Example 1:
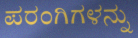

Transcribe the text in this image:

ಪರಂಗಿಗಳನ್ನು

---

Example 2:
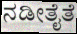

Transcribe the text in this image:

ನಡೀತೈತೆ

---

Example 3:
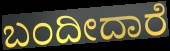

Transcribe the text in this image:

ಬಂದೀದಾರೆ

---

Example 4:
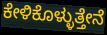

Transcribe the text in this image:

ಕೇಳಿಕೊಳ್ಳುತ್ತೇನೆ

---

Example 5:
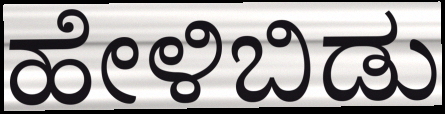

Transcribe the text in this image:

ಹೇಳಿಬಿಡು